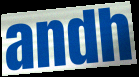
andh